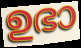
ഉഭാ